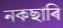
নকছাৰি